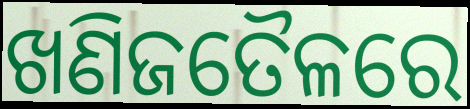
ଖଣିଜତୈଳରେ